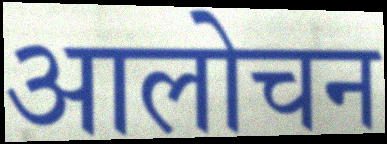
आलोचन